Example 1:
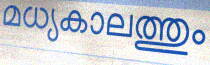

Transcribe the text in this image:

മധ്യകാലത്തും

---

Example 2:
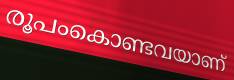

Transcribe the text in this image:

രൂപംകൊണ്ടവയാണ്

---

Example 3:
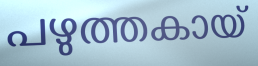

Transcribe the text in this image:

പഴുത്തകായ്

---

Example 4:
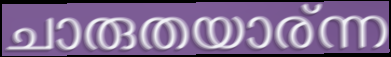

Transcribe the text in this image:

ചാരുതയാര്ന്ന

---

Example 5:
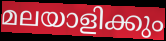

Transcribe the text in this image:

മലയാളിക്കും